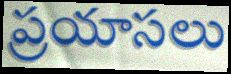
ప్రయాసలు